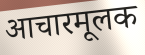
आचारमूलक